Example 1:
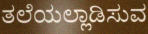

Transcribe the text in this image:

ತಲೆಯಲ್ಲಾಡಿಸುವ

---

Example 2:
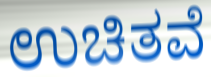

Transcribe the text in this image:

ಉಚಿತವೆ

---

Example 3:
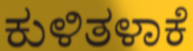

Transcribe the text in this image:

ಕುಳಿತಳಾಕೆ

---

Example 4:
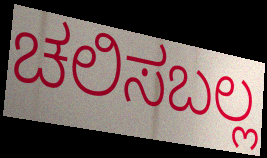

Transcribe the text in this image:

ಚಲಿಸಬಲ್ಲ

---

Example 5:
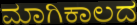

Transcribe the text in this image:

ಮಾಗಿಕಾಲದ